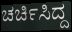
ಚರ್ಚಿಸಿದ್ದ